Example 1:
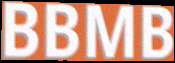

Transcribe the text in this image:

BBMB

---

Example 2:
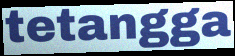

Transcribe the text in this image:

tetangga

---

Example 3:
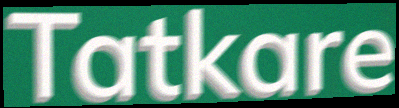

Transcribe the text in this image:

Tatkare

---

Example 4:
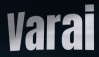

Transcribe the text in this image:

Varai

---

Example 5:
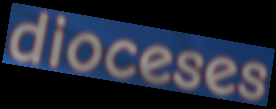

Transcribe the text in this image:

dioceses